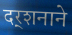
दर्शनाने